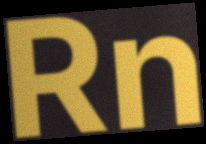
Rn